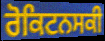
ਰੋਕਿਟਨਸਕੀ